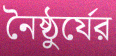
নৈষ্ঠুর্যের